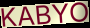
KABYO